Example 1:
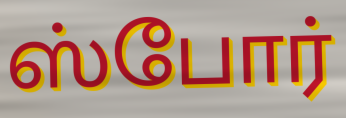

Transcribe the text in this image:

ஸ்போர்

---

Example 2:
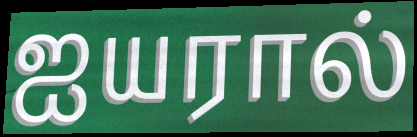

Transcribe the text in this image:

ஐயரால்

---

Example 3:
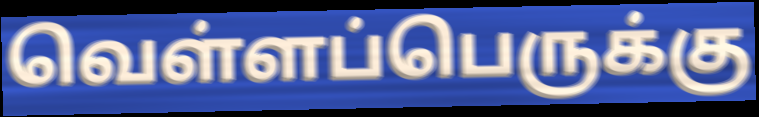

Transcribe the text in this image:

வெள்ளப்பெருக்கு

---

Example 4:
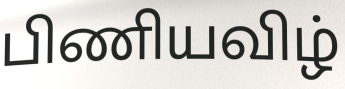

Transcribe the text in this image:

பிணியவிழ்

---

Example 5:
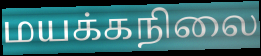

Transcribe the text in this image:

மயக்கநிலை